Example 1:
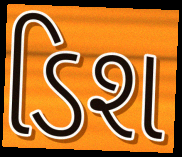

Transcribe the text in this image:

ડિશ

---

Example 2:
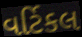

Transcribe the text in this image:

વર્ટિકલ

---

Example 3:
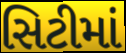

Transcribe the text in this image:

સિટીમાં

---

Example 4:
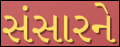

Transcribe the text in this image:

સંસારને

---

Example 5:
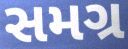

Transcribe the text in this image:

સમગ્ર